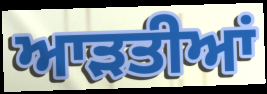
ਆਡ਼ਤੀਆਂ